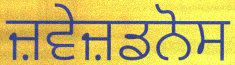
ਜ਼ਵੇਜ਼ਡਨੋਸ